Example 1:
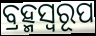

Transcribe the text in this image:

ବ୍ରହ୍ମସ୍ୱରୂପ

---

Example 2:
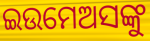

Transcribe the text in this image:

ଇଉମେଅସଙ୍କୁ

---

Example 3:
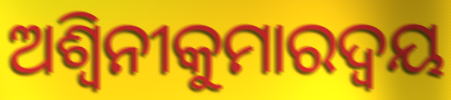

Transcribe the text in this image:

ଅଶ୍ୱିନୀକୁମାରଦ୍ୱୟ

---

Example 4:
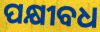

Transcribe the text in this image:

ପକ୍ଷୀବଧ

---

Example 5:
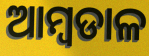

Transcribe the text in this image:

ଆମ୍ବଡାଳ